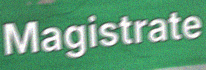
Magistrate